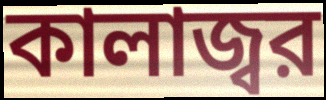
কালাজ্বর